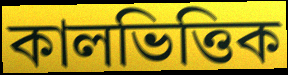
কালভিত্তিক